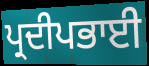
ਪ੍ਰਦੀਪਭਾਈ